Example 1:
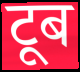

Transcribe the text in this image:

टूब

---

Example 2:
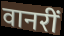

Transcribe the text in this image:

वानरीं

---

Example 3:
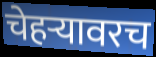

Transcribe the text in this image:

चेहर्‍यावरच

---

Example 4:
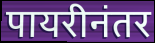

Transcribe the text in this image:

पायरीनंतर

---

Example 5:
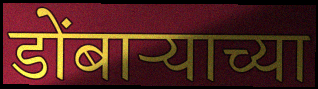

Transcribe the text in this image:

डोंबाऱ्याच्या